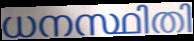
ധനസ്ഥിതി